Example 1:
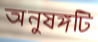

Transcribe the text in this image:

অনুষঙ্গটি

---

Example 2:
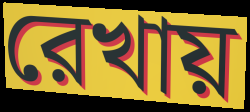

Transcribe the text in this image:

রেখায়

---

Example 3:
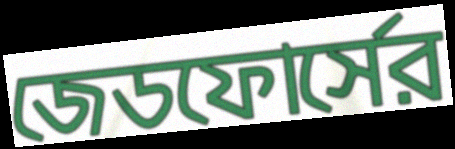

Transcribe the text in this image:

জেডফোর্সের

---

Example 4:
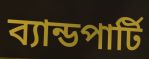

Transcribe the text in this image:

ব্যান্ডপার্টি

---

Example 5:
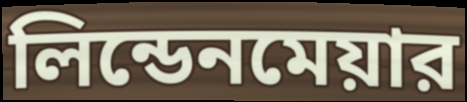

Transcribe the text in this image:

লিন্ডেনমেয়ার